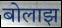
बोलाझ